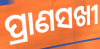
ପ୍ରାଣସଖୀ